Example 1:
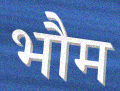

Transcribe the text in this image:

भौम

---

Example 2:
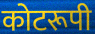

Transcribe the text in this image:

कोटरूपी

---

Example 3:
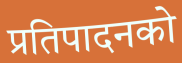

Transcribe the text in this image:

प्रतिपादनको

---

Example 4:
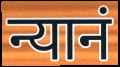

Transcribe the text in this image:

न्यानं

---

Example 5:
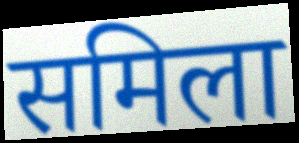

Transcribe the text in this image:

समिला